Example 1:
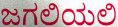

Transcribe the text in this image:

ಜಗಲಿಯಲಿ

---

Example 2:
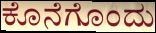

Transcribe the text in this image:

ಕೊನೆಗೊಂದು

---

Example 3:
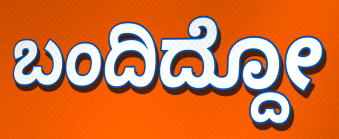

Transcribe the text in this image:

ಬಂದಿದ್ದೋ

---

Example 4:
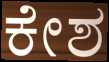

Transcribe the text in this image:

ಕೇಶ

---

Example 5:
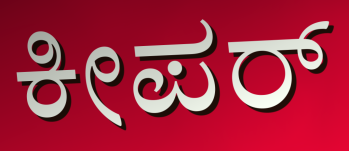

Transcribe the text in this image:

ಕೀಪರ್